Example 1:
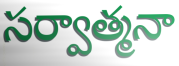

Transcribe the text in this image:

సర్వాత్మనా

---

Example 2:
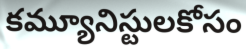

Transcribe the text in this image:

కమ్యూనిస్టులకోసం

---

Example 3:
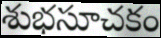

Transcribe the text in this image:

శుభసూచకం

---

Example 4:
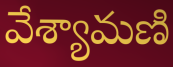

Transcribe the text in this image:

వేశ్యామణి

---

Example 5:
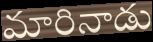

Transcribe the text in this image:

మారినాడు